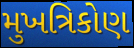
મુખત્રિકોણ